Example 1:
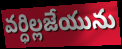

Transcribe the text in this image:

వర్ధిల్లజేయును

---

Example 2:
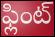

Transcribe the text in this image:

ఫ్లింట్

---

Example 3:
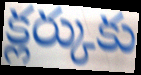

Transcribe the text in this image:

క్లర్కుకు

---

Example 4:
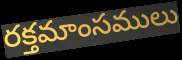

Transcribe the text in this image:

రక్తమాంసములు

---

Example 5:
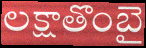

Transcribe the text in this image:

లక్షాతొంబై